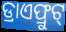
ଡ୍ରାଏଫ୍ରୁଟ୍